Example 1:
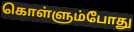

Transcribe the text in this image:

கொள்ளும்போது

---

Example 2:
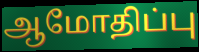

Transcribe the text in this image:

ஆமோதிப்பு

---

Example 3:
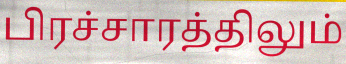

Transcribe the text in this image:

பிரச்சாரத்திலும்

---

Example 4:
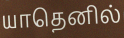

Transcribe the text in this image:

யாதெனில்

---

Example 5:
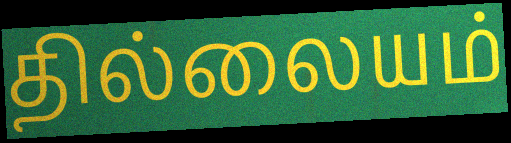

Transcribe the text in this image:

தில்லையம்